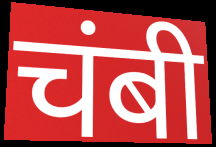
चंबी